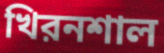
খিরনশাল